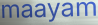
maayam